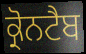
ਕ੍ਰੋਨਟੈਬ